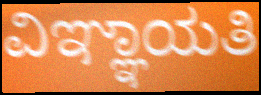
ವಿಞ್ಞಾಯತಿ